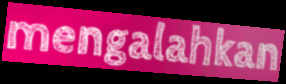
mengalahkan